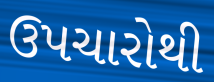
ઉપચારોથી